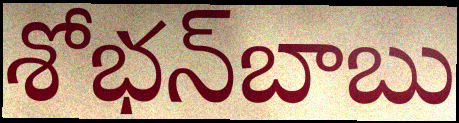
శోభన్‌బాబు